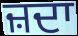
ਜ਼ਦਾ